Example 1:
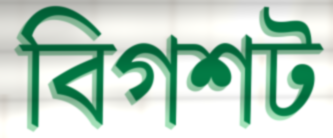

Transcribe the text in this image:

বিগশট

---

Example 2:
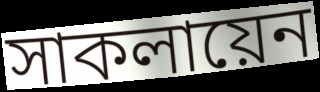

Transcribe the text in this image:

সাকলায়েন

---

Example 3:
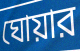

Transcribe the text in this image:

ঘোয়ার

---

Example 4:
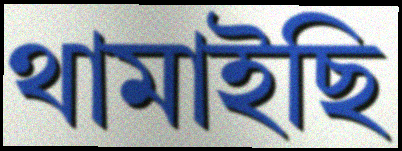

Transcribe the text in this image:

থামাইছি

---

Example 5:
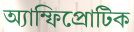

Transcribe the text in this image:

অ্যাম্ফিপ্রোটিক